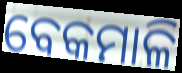
ବେକମାଳି